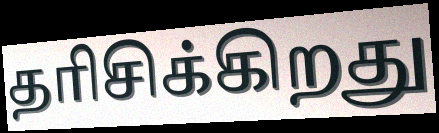
தரிசிக்கிறது